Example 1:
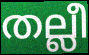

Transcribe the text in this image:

തല്ലീ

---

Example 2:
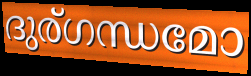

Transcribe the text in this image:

ദുര്ഗന്ധമോ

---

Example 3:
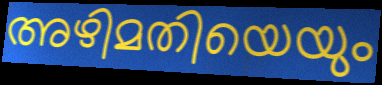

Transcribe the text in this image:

അഴിമതിയെയും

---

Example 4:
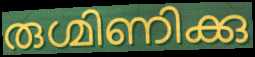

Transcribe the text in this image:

രുഗ്മിണിക്കു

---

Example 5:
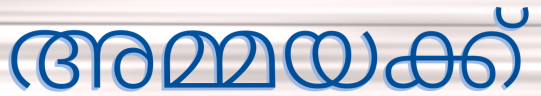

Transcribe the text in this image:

അമ്മയക്ക്